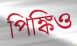
পিঙ্কিও